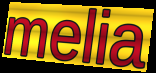
melia